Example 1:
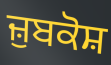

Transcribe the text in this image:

ਜ਼ੁਬਕੋਸ਼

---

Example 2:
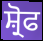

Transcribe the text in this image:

ਸ਼੍ਰੋਫ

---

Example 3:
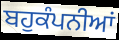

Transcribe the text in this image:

ਬਹੁਕੰਪਨੀਆਂ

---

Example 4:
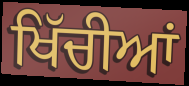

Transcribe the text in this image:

ਖਿੱਚੀਆਂ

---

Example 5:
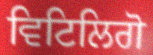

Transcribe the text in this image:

ਵਿਟਿਲਿਗੋ